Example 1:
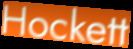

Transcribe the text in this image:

Hockett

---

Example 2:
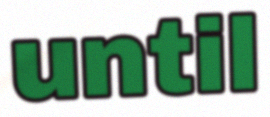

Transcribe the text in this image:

until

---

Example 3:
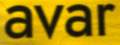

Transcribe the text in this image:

avar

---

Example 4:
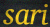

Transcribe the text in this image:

sari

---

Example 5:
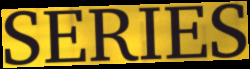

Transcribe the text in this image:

SERIES